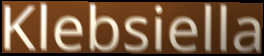
Klebsiella